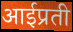
आईप्रती